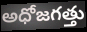
అధోజగత్తు